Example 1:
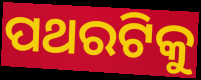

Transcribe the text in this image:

ପଥରଟିକୁ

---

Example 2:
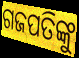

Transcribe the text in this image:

ଗଜପତିଙ୍କୁ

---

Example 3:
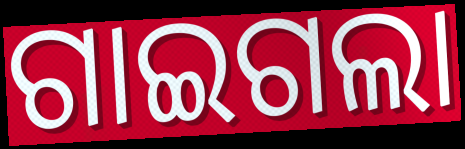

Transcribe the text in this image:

ଗାଇଗଲା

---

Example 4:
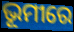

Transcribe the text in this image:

ଭୂମୀରେ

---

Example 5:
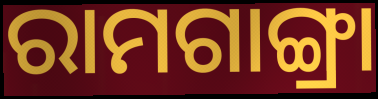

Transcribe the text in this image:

ରାମଗାଙ୍ଗ୍ରା